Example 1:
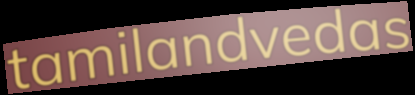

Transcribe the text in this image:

tamilandvedas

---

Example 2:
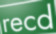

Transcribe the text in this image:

recd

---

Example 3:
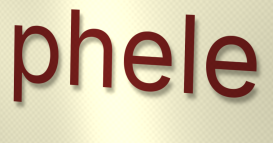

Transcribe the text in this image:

phele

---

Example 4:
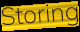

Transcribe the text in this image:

Storing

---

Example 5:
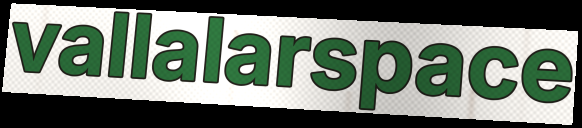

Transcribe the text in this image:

vallalarspace